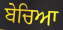
ਬੇਚਿਆ